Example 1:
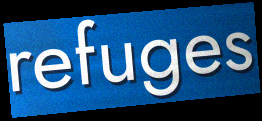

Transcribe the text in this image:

refuges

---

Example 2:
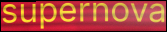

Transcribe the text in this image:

supernova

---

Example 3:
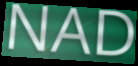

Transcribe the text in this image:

NAD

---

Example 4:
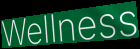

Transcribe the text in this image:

Wellness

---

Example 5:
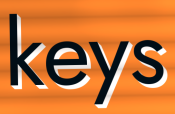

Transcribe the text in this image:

keys